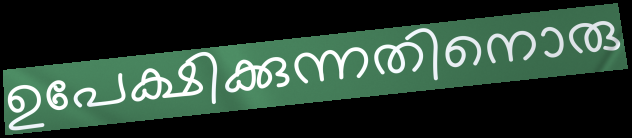
ഉപേക്ഷിക്കുന്നതിനൊരു